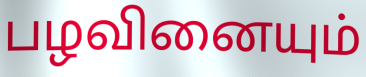
பழவினையும்